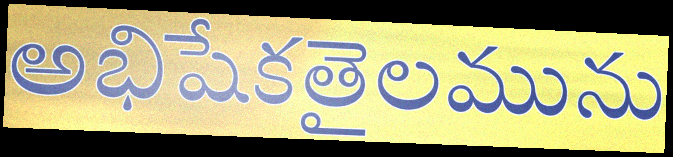
అభిషేకతైలమును